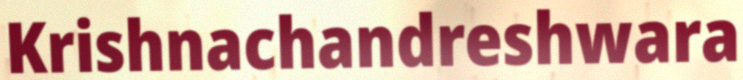
Krishnachandreshwara